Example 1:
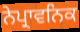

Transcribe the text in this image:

ਨੇਪ੍ਰਾਵਨਿਕ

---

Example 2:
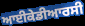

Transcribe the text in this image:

ਆਈਕੇਡੀਆਰਸੀ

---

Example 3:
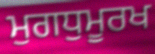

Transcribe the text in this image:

ਮੁਗਧੁਮੂਰਖ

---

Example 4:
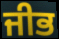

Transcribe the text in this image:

ਜੀਭ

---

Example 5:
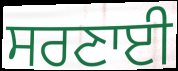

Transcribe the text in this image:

ਸਰਣਾਈ